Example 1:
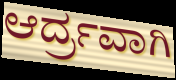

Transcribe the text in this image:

ಆರ್ದ್ರವಾಗಿ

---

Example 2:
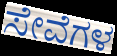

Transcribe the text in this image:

ಸೇವೆಗಳ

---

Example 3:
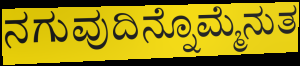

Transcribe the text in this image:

ನಗುವುದಿನ್ನೊಮ್ಮೆನುತ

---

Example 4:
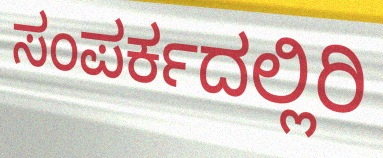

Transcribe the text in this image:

ಸಂಪರ್ಕದಲ್ಲಿರಿ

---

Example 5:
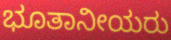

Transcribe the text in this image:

ಭೂತಾನೀಯರು